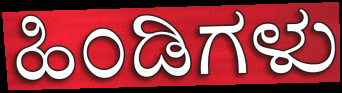
ಹಿಂಡಿಗಳು